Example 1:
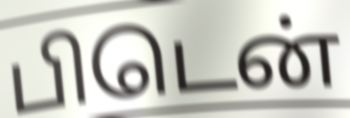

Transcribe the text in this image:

பிடென்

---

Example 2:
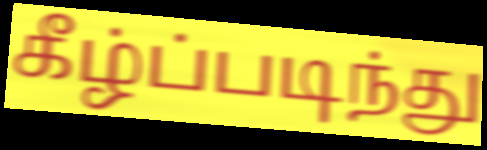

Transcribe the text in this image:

கீழ்ப்படிந்து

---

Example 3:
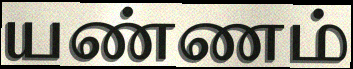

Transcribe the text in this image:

யண்ணம்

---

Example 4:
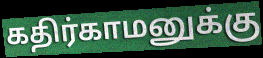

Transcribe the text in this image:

கதிர்காமனுக்கு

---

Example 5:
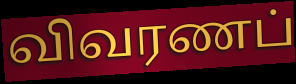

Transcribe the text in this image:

விவரணப்